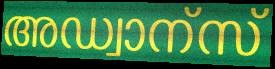
അഡ്വാന്സ്